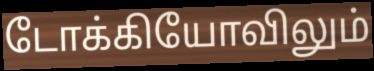
டோக்கியோவிலும்